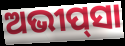
ଅଭୀପ୍‌ସା